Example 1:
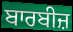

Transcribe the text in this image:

ਬਾਰਬੀਜ਼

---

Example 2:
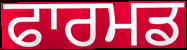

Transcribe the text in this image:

ਫਾਰਮਡ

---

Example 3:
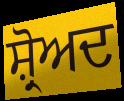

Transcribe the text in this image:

ਸ਼੍ਰੋਅਦ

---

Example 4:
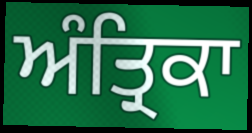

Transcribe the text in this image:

ਅੰਤ੍ਰਿਕਾ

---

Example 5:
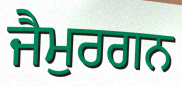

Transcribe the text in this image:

ਜੈਮੁਰਗਨ